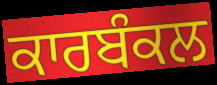
ਕਾਰਬੰਕਲ